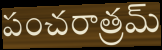
పంచరాత్రమ్